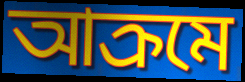
আক্রমে